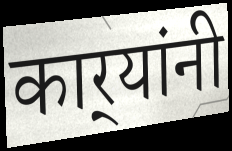
कार्यांनी